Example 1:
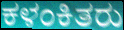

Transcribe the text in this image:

ಕಳಂಕಿತರು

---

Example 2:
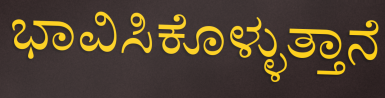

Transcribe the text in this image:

ಭಾವಿಸಿಕೊಳ್ಳುತ್ತಾನೆ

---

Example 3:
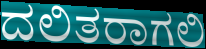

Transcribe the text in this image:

ದಲಿತರಾಗಲಿ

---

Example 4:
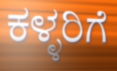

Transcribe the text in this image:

ಕಳ್ಳರಿಗೆ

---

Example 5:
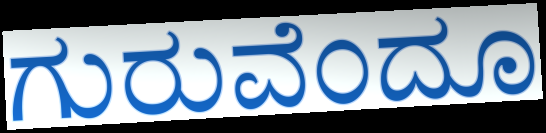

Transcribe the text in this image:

ಗುರುವೆಂದೂ